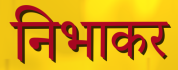
निभाकर